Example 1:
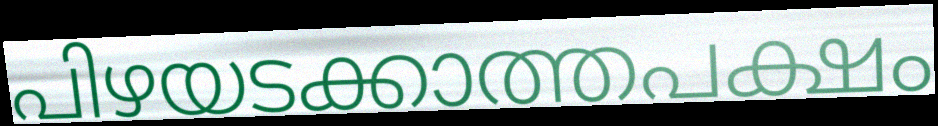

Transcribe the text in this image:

പിഴയടക്കാത്തപക്ഷം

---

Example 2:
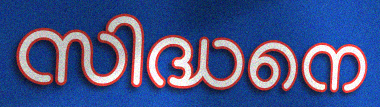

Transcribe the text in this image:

സിദ്ധനെ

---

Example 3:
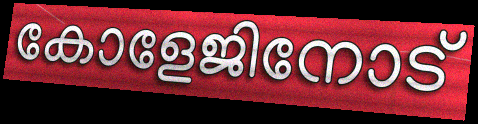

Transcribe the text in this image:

കോളേജിനോട്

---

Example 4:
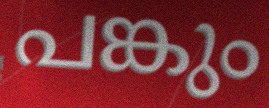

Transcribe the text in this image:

പങ്കും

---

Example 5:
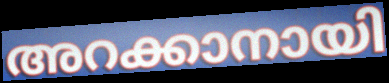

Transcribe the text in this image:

അറക്കാനായി